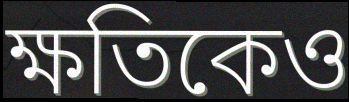
ক্ষতিকেও